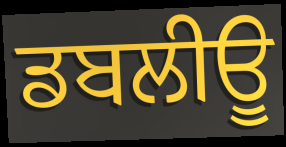
ਡਬਲੀਊ